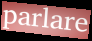
parlare